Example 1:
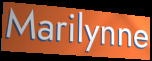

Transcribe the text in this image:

Marilynne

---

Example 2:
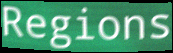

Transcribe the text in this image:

Regions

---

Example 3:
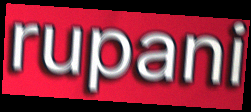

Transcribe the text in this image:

rupani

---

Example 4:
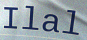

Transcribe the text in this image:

Ilal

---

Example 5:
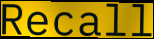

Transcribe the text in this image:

Recall